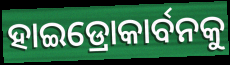
ହାଇଡ୍ରୋକାର୍ବନକୁ